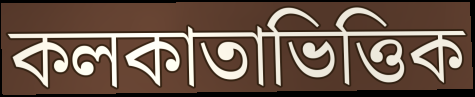
কলকাতাভিত্তিক